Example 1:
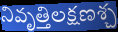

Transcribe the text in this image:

నివృత్తిలక్షణశ్చ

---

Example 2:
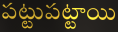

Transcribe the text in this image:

పట్టుపట్టాయి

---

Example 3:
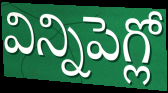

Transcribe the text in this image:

విన్నిపెగ్లో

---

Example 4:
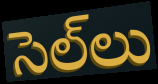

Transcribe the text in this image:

సెల్‌లు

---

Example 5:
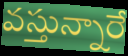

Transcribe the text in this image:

వస్తున్నారే